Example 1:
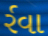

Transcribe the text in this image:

ર્રવા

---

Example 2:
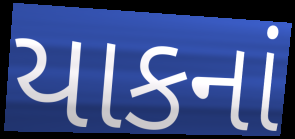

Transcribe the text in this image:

યાકનાં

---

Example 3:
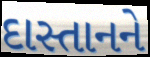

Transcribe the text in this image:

દાસ્તાનને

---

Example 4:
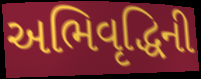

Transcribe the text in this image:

અભિવૃદ્ધિની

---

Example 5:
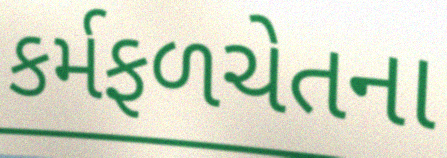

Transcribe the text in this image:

કર્મફળચેતના